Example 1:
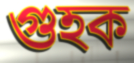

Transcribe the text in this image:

গুহক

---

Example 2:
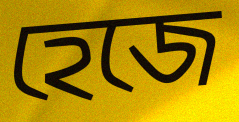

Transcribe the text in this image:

হেজে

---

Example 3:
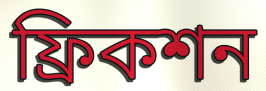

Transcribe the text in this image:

ফ্রিকশন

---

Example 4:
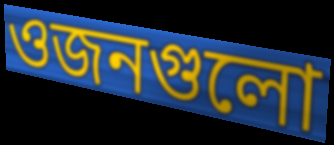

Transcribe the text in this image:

ওজনগুলো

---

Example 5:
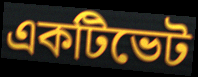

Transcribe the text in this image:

একটিভেট